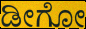
ಡೀಗೋ